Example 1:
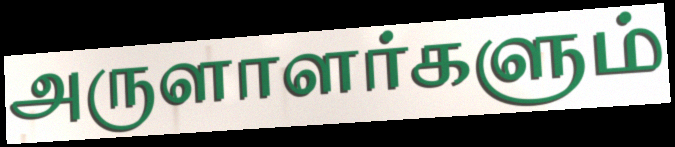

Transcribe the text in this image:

அருளாளர்களும்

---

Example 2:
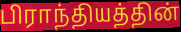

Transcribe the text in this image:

பிராந்தியத்தின்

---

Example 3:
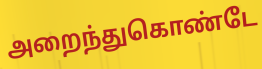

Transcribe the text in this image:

அறைந்துகொண்டே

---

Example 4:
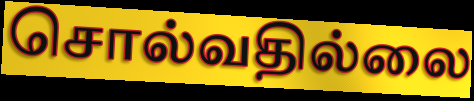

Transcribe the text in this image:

சொல்வதில்லை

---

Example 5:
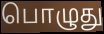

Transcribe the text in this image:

பொழுது